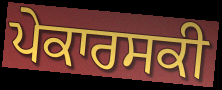
ਪੇਕਾਰਸਕੀ